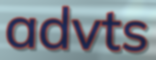
advts